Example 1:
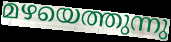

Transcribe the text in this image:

മഴയെത്തുന്നു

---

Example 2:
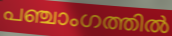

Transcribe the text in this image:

പഞ്ചാംഗത്തിൽ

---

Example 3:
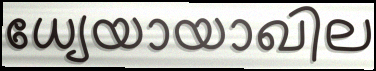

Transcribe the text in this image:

ധ്യേയായാഖില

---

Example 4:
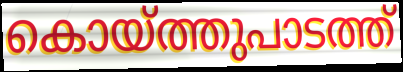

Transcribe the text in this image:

കൊയ്ത്തുപാടത്ത്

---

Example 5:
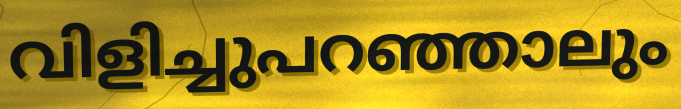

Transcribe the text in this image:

വിളിച്ചുപറഞ്ഞാലും